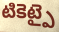
టికెట్పై